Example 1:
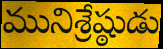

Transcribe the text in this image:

మునిశ్రేష్ఠుడు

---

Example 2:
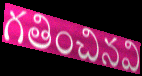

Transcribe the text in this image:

గతించినవి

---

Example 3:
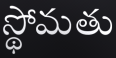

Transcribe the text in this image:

స్థోమతు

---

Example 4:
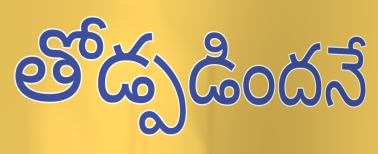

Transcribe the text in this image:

తోడ్పడిందనే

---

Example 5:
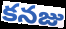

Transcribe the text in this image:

కనజు